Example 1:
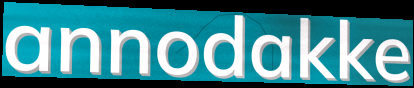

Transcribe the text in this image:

annodakke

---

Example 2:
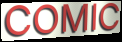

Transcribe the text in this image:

COMIC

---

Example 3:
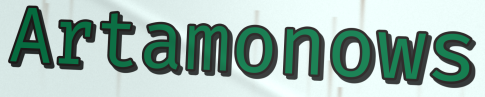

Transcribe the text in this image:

Artamonows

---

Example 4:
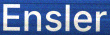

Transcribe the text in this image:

Ensler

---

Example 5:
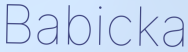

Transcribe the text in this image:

Babicka